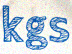
kgs